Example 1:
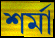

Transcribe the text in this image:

শর্মা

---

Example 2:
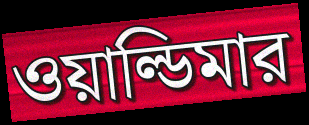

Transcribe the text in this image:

ওয়াল্ডিমার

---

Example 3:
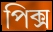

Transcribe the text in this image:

পিক্স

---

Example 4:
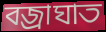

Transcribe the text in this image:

বজ্রাঘাত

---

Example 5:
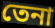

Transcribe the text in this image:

তেনা